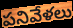
పనివేళలు